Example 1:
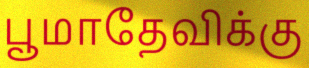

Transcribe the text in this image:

பூமாதேவிக்கு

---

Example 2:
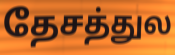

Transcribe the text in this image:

தேசத்துல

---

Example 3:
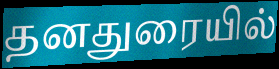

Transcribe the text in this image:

தனதுரையில்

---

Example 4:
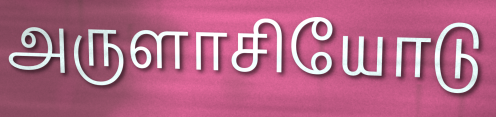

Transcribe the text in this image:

அருளாசியோடு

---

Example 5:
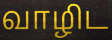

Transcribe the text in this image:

வாழிட